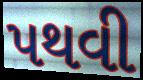
પથવી